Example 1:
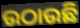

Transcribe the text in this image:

ଉଠାଉଛି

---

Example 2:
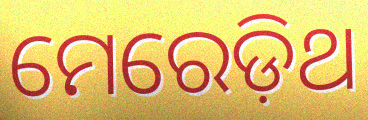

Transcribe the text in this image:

ମେରେଡ଼ିଥ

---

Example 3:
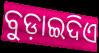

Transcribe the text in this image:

ବୁଡ଼ାଇଦିଏ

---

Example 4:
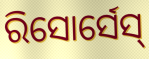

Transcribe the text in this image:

ରିସୋର୍ସେସ୍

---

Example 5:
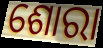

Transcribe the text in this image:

ଶୋରା